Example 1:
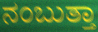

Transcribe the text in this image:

ನಂಬುತ್ತಾ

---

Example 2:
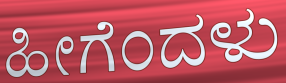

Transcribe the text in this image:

ಹೀಗೆಂದಳು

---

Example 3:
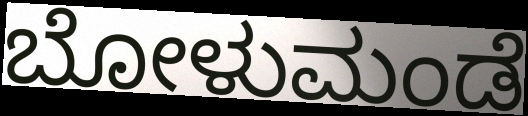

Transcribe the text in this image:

ಬೋಳುಮಂಡೆ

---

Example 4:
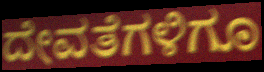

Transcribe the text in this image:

ದೇವತೆಗಳಿಗೂ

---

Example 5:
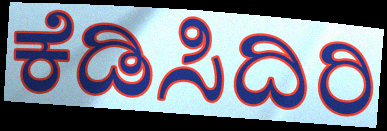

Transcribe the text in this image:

ಕೆಡಿಸಿದಿರಿ